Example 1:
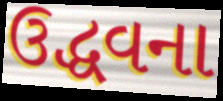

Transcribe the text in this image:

ઉદ્ધવના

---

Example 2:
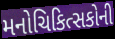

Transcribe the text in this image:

મનોચિકિત્સકોની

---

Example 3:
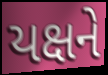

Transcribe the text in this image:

યક્ષને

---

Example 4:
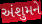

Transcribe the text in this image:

અંશુમને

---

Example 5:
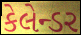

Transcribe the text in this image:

કેલેન્ડર